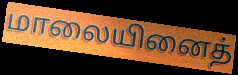
மாலையினைத்